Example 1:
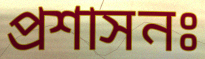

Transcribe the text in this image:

প্ৰশাসনঃ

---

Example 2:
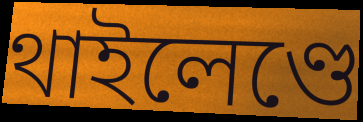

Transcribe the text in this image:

থাইলেণ্ডে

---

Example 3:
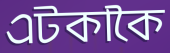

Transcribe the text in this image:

এটকাকৈ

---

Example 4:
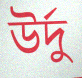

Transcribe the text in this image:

উৰ্দু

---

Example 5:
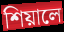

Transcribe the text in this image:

শিয়ালে